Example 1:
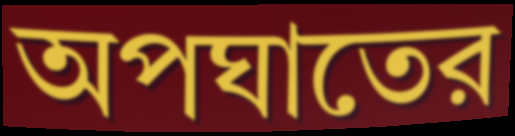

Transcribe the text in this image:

অপঘাতের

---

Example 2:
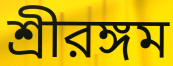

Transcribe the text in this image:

শ্রীরঙ্গম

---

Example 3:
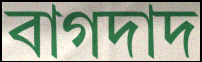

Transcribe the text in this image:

বাগদাদ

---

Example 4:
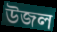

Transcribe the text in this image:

উজল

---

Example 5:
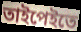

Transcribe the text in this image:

তাইপেইতে